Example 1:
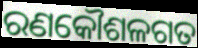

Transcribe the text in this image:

ରଣକୌଶଳଗତ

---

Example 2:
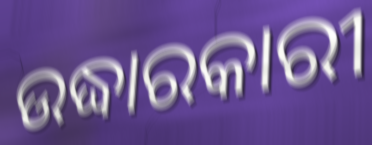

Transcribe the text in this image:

ଉଦ୍ଧାରକାରୀ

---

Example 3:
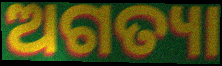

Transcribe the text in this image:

ଅଗତ୍ୟା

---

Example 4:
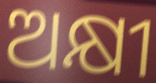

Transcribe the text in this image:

ଅକ୍ଷୀ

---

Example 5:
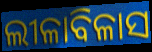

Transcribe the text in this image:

ଲୀଳାବିଳାସ